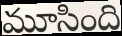
మూసింది